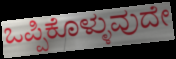
ಒಪ್ಪಿಕೊಳ್ಳುವುದೇ